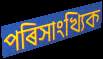
পৰিসাংখ্যিক